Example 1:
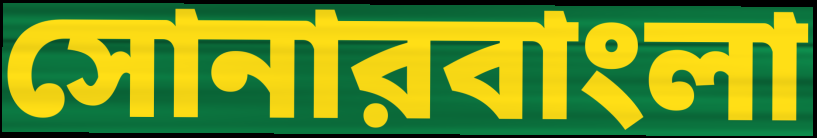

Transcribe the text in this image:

সোনারবাংলা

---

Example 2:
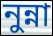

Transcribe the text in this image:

নুন্না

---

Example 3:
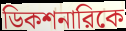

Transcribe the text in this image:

ডিকশনারিকে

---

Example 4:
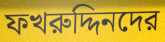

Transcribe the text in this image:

ফখরুদ্দিনদের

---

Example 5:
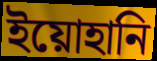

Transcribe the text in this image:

ইয়োহানি